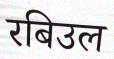
रबिउल